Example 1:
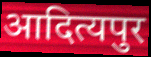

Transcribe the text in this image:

आदित्यपुर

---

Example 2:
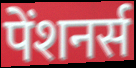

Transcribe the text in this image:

पेंशनर्स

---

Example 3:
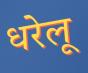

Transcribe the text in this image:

धरेलू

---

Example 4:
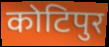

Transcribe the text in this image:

कोटिपुर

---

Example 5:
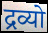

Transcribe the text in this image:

द्रव्यो